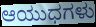
ಆಯುಧಗಳು